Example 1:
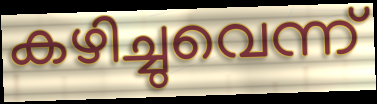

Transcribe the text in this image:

കഴിച്ചുവെന്ന്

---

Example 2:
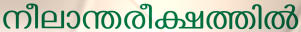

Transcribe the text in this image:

നീലാന്തരീക്ഷത്തിൽ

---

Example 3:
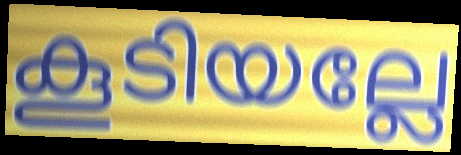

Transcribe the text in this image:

കൂടിയല്ലേ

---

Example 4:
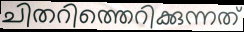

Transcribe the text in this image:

ചിതറിത്തെറിക്കുന്നത്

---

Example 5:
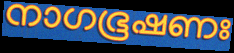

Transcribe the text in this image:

നാഗഭൂഷണഃ